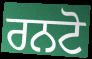
ਰਨਟੋ